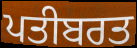
ਪਤੀਬਰਤ